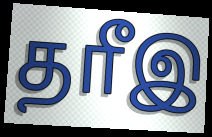
தரீஇ